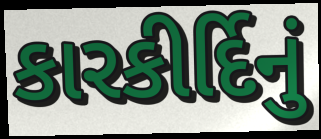
કારકીર્દિનું